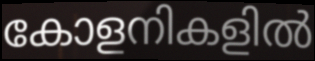
കോളനികളിൽ